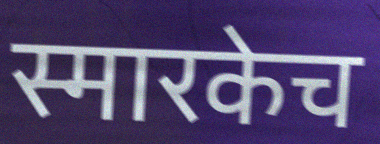
स्मारकेच